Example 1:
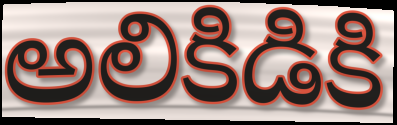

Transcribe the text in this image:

అలికిడికి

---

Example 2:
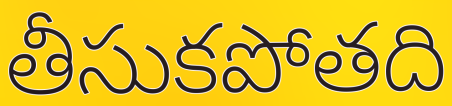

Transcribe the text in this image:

తీసుకపోతది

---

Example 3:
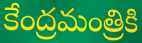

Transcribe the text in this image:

కేంద్రమంత్రికి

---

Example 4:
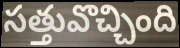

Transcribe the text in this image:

సత్తువొచ్చింది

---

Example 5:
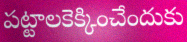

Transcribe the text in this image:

పట్టాలకెక్కించేందుకు